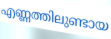
എണ്ണത്തിലുണ്ടായ